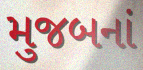
મુજબનાં